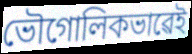
ভৌগোলিকভাৱেই